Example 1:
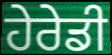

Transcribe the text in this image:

ਹੇਰੇਡੀ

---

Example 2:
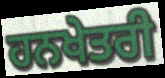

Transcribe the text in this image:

ਹਨਖੇਤਰੀ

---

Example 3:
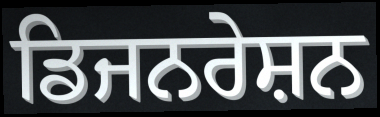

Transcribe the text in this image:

ਡਿਜਨਰੇਸ਼ਨ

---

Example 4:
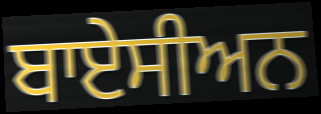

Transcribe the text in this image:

ਬਾਏਸੀਅਨ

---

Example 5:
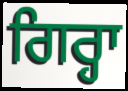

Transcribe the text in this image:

ਗਿਰ੍ਹਾ